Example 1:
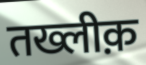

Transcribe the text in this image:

तख्लीक़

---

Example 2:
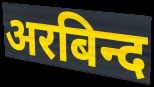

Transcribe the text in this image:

अरबिन्द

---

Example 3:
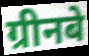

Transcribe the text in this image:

ग्रीनबे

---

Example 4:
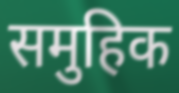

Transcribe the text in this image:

समुहिक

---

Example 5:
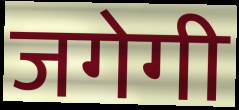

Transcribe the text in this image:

जगेगी